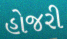
હોજરી